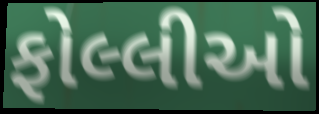
ફોલ્લીઓ